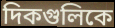
দিকগুলিকে